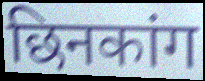
छिनकांग